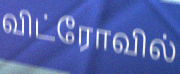
விட்ரோவில்